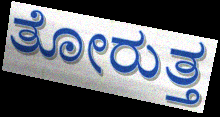
ತೋರುತ್ತ